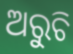
ଅରୁଚି